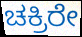
ಚಕ್ರಿರೇ